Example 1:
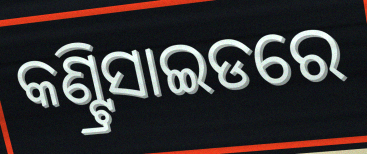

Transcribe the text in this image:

କଣ୍ଟ୍ରିସାଇଡରେ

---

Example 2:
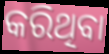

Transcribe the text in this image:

କରିଥିବା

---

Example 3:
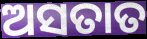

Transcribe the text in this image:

ଅସତାତ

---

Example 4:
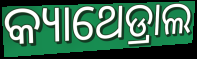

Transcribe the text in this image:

କ୍ୟାଥେଡ୍ରାଲ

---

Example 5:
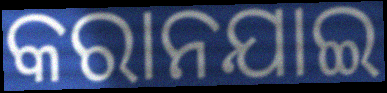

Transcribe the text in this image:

କରାନଯାଇ